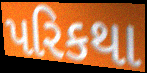
પરિકથા